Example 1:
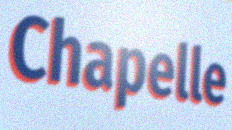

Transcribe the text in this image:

Chapelle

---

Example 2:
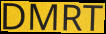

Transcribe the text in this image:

DMRT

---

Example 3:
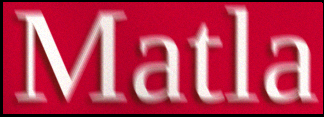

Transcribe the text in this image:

Matla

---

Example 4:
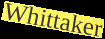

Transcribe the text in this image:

Whittaker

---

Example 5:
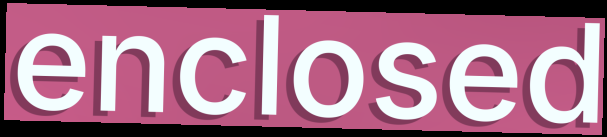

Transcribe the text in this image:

enclosed